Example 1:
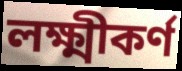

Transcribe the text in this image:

লক্ষ্মীকর্ণ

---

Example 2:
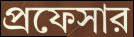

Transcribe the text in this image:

প্রফেসার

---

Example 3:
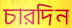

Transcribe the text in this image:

চারদিন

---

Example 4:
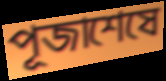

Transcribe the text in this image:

পূজাশেষে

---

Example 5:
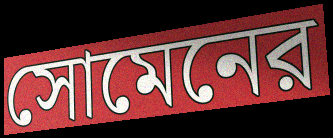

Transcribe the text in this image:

সোমেনের